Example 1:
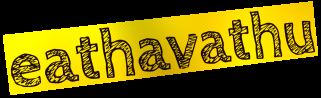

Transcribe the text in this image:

eathavathu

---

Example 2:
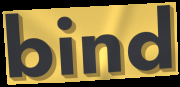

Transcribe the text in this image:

bind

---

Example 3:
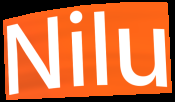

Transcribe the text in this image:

Nilu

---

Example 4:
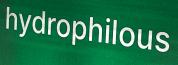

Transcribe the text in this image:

hydrophilous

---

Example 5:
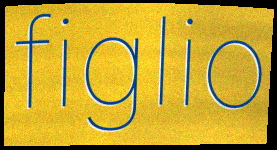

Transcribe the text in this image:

figlio